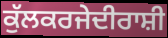
ਕੁੱਲਕਰਜੇਦੀਰਾਸ਼ੀ